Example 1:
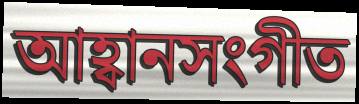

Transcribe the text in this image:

আহ্বানসংগীত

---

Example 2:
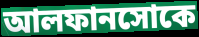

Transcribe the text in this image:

আলফানসোকে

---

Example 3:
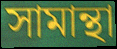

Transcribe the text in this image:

সামান্থা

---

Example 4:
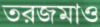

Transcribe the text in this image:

তরজমাও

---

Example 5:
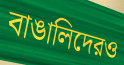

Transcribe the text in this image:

বাঙালিদেরও